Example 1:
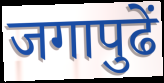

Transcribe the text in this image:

जगापुढें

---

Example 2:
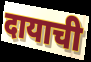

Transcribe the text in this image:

दायाची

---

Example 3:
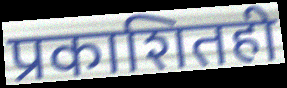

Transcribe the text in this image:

प्रकाशितही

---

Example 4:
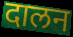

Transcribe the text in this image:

दालन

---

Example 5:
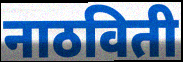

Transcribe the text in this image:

नाठविती